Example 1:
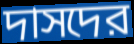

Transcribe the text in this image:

দাসদের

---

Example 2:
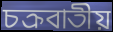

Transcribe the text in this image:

চক্রবাতীয়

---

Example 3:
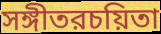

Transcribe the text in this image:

সঙ্গীতরচয়িতা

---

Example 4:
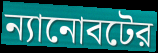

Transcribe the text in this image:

ন্যানোবটের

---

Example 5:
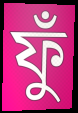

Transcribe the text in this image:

ফুঁ